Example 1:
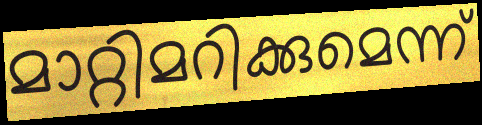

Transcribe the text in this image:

മാറ്റിമറിക്കുമെന്ന്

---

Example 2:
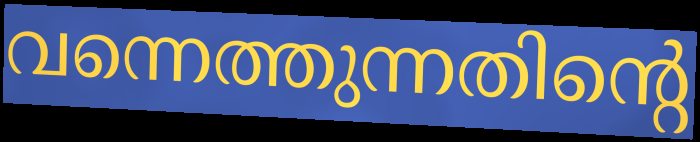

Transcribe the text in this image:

വന്നെത്തുന്നതിന്റെ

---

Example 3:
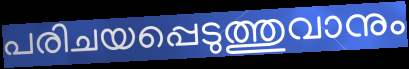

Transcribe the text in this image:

പരിചയപ്പെടുത്തുവാനും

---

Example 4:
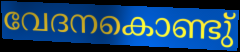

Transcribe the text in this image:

വേദനകൊണ്ടു്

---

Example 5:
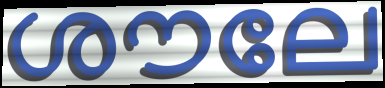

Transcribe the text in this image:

ശൗലേ